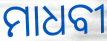
ମାଧବୀ